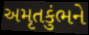
અમૃતકુંભને